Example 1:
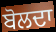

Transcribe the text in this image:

ਬੋਲਦਾ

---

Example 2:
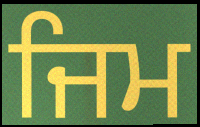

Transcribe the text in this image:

ਜਿਮ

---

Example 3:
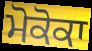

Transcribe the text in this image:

ਮੋਕੋਕਾ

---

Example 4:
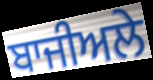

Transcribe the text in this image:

ਬਾਜੀਅਲੇ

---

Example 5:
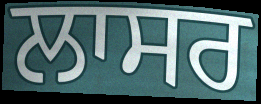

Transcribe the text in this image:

ਲਾਸਰ